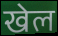
खेल